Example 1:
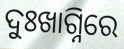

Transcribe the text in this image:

ଦୁଃଖାଗ୍ନିରେ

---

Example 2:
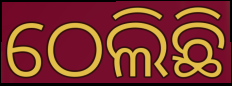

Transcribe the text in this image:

ଠେଲିଛି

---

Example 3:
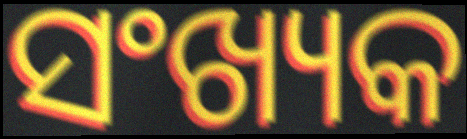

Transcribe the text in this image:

ସଂଖ୍ୟକ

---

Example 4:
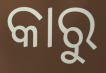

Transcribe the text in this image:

କାରୁ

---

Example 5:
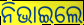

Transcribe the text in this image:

ନିଭାଇଲେ